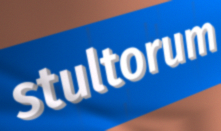
stultorum